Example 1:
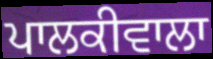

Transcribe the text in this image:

ਪਾਲਕੀਵਾਲਾ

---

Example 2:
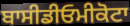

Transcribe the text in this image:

ਬਾਸੀਡੀਓਮੀਕੋਟਾ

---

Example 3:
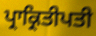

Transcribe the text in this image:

ਪ੍ਰਾਕ੍ਰਿਤੀਪਤੀ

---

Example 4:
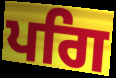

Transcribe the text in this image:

ਪਗਿ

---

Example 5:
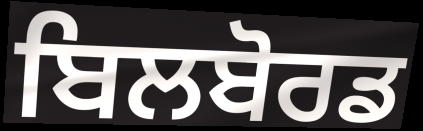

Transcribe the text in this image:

ਬਿਲਬੋਰਡ